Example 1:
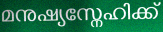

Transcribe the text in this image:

മനുഷ്യസ്നേഹിക്ക്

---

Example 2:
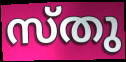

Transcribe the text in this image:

സ്തു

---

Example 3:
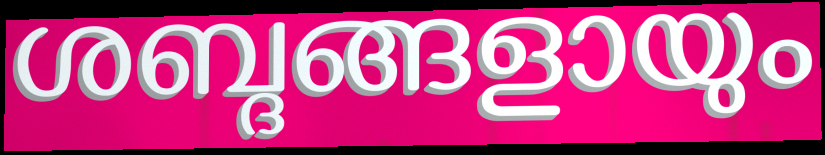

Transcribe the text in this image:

ശബ്ദങ്ങളായും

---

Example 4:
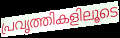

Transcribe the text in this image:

പ്രവൃത്തികളിലൂടെ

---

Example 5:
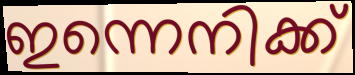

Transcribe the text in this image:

ഇന്നെനിക്ക്